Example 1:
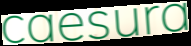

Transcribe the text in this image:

caesura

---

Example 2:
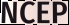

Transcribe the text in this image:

NCEP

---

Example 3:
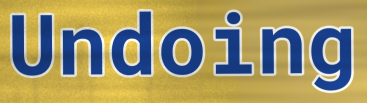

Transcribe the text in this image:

Undoing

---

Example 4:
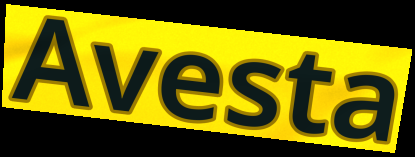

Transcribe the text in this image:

Avesta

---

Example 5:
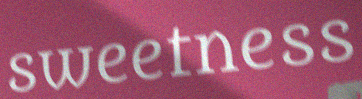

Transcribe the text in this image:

sweetness